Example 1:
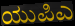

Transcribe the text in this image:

ಯುಪಿಎ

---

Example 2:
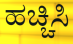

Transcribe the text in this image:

ಹಚ್ಚಿಸಿ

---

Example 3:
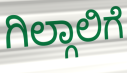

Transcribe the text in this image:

ಗಿಲ್ಗಾಲಿಗೆ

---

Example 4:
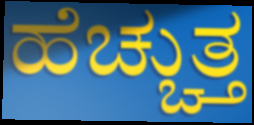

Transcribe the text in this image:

ಹೆಚ್ಚುತ್ತ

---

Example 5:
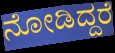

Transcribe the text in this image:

ನೋಡಿದ್ದರೆ